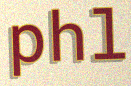
phl